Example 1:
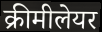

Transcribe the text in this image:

क्रीमीलेयर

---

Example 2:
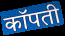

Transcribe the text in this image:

कॉपती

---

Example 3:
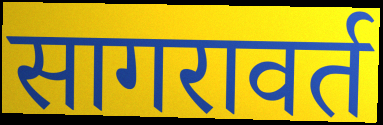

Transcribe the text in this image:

सागरावर्त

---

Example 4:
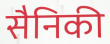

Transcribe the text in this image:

सैनिकी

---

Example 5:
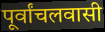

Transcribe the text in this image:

पूर्वांचलवासी